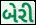
બેરી